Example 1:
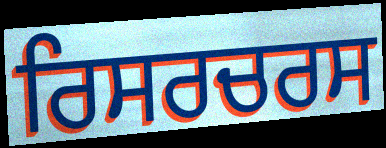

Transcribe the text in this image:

ਰਿਸਰਚਰਸ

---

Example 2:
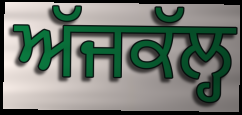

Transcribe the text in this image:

ਅੱਜਕੱਲ੍ਹ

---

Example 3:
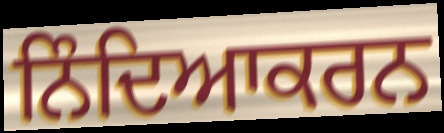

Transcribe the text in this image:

ਨਿੰਦਿਆਕਰਨ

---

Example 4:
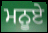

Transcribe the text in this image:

ਮਨੂਏ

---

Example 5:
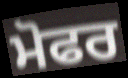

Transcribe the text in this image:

ਮੋਫਰ